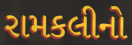
રામકલીનો